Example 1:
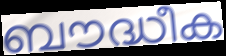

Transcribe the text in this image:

ബൗദ്ധീക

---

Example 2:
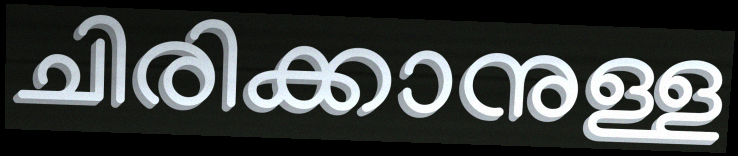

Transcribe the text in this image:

ചിരിക്കാനുള്ള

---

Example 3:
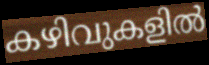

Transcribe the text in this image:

കഴിവുകളിൽ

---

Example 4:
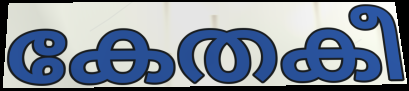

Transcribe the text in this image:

കേതകീ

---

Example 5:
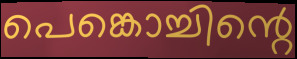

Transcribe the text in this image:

പെങ്കൊച്ചിന്റെ